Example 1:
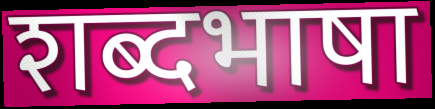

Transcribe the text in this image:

शब्दभाषा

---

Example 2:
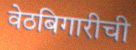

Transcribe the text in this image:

वेठबिगारीची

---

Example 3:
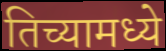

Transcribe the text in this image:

तिच्यामध्ये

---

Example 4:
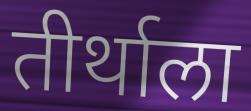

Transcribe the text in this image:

तीर्थाला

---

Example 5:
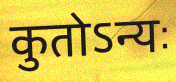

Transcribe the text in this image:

कुतोऽन्यः